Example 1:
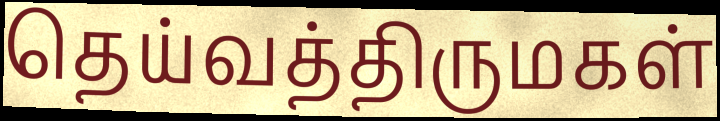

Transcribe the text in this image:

தெய்வத்திருமகள்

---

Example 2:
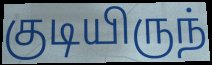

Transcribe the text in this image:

குடியிருந்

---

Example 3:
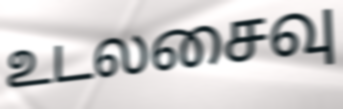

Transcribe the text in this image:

உடலசைவு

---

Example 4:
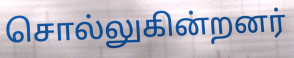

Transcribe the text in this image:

சொல்லுகின்றனர்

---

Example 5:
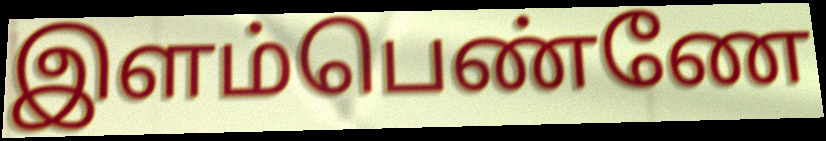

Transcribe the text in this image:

இளம்பெண்ணே